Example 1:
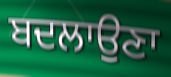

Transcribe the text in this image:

ਬਦਲਾਉਣਾ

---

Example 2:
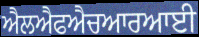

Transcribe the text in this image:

ਐਲਐਫਐਚਆਰਆਈ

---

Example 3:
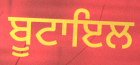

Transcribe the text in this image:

ਬੂਟਾਇਲ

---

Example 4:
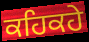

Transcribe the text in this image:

ਕਹਿਕਹੇ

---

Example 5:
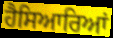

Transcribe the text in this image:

ਹੈਸਿਆਰਿਆਂ